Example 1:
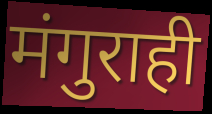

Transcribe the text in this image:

मंगुराही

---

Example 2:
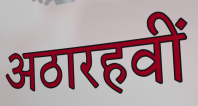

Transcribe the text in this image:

अठारहवीं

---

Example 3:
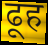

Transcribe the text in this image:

ढूह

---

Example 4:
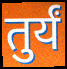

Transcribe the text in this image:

तुर्यं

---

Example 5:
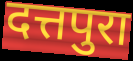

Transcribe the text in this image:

दत्तपुरा